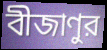
বীজাণুর